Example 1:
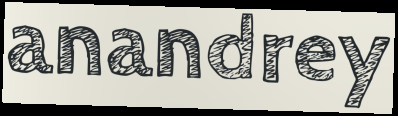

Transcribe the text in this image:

anandrey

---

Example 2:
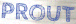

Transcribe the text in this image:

PROUT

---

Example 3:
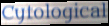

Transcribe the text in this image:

Cytological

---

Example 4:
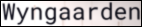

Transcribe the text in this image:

Wyngaarden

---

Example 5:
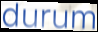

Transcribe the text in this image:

durum